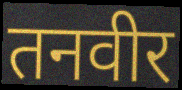
तनवीर